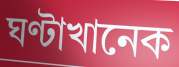
ঘণ্টাখানেক